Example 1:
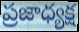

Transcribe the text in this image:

ప్రజాధ్యక్ష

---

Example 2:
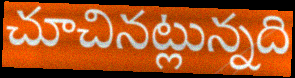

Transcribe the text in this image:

చూచినట్లున్నది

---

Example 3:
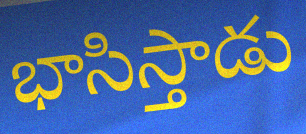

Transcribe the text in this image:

భాసిస్తాడు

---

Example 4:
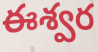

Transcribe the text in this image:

ఈశ్వర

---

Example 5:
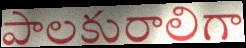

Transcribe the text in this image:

పాలకురాలిగా